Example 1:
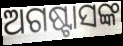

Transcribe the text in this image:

ଅଗଷ୍ଟାସଙ୍କ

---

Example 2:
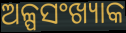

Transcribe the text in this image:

ଅଳ୍ପସଂଖ୍ୟାକ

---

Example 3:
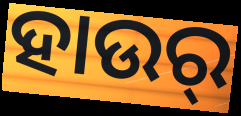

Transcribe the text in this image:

ହାଉର୍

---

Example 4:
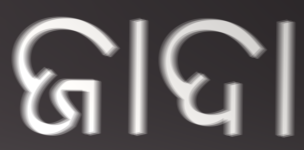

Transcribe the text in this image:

ଜାଦା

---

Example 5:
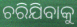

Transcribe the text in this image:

ଚରିଯିବାକୁ